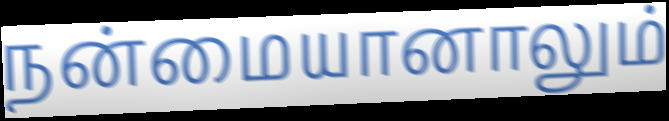
நன்மையானாலும்